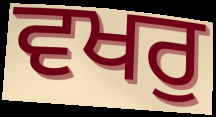
ਵਖਰੁ